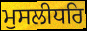
ਮੁਸਲੀਧਰਿ